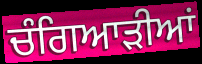
ਚੰਗਿਆੜੀਆਂ